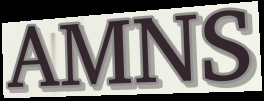
AMNS